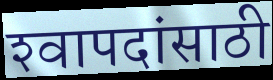
श्वापदांसाठी